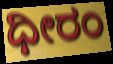
ಧೀರಂ